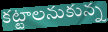
కట్టాలనుకున్న